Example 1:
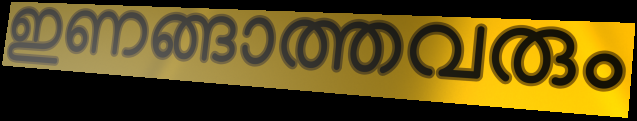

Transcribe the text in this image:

ഇണങ്ങാത്തവരും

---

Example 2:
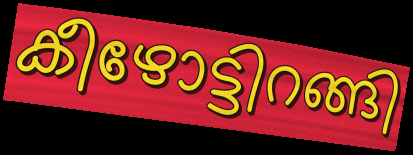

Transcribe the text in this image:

കീഴോട്ടിറങ്ങി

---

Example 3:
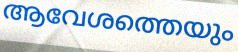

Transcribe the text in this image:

ആവേശത്തെയും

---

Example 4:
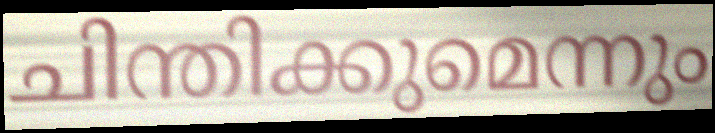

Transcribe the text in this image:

ചിന്തിക്കുമെന്നും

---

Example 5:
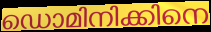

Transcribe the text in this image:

ഡൊമിനിക്കിനെ